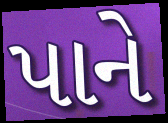
પાને